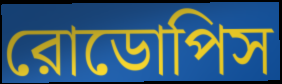
রোডোপিস